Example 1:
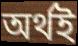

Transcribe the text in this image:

অর্থই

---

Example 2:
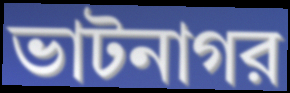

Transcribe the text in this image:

ভাটনাগর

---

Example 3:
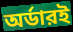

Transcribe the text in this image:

অর্ডারই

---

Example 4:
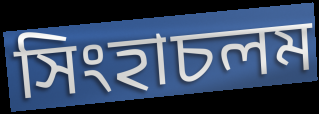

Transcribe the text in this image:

সিংহাচলম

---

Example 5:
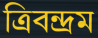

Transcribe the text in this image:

ত্রিবন্দ্রম